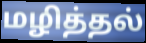
மழித்தல்